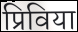
प्रिविया